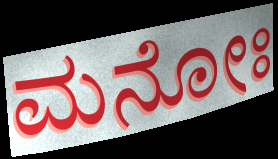
ಮನೋಃ